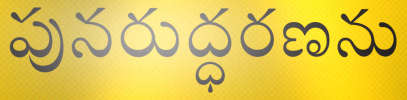
పునరుద్ధరణను